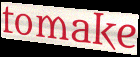
tomake